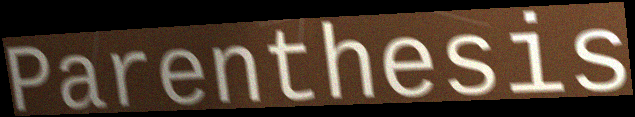
Parenthesis